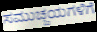
ಸಮುಚ್ಚಯಗಳಿಗೆ